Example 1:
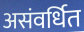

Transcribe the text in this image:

असंवर्धित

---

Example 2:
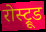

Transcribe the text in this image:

रोस्ट्रूड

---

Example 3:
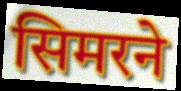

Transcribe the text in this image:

सिमरने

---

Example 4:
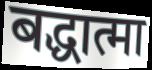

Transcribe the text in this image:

बद्धात्मा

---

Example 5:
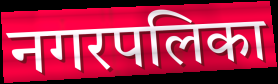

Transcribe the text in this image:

नगरपलिका